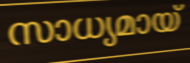
സാധ്യമായ്